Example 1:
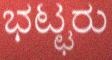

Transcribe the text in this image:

ಭಟ್ಟರು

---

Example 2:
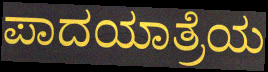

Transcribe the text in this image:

ಪಾದಯಾತ್ರೆಯ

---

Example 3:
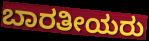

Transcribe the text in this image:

ಬಾರತೀಯರು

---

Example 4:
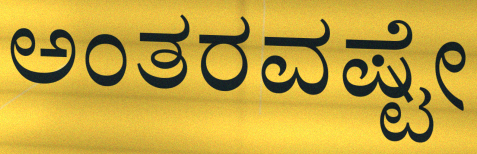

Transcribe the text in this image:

ಅಂತರವಷ್ಟೇ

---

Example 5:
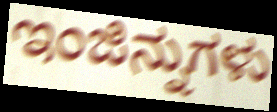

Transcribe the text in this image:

ಇಂಜಿನ್ನುಗಳು